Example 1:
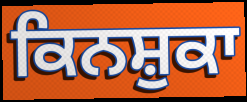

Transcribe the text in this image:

ਕਿਨਸ਼ੁਕਾ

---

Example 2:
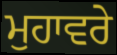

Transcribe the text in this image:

ਮੁਹਾਵਰੇ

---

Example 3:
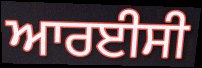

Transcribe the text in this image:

ਆਰਈਸੀ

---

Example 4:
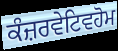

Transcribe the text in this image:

ਕੰਜ਼ਰਵੇਟਿਵਹੋਮ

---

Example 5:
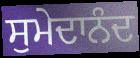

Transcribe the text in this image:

ਸੁਮੇਦਾਨੰਦ